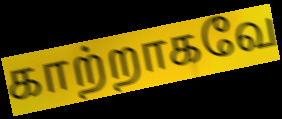
காற்றாகவே